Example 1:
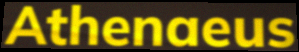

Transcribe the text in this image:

Athenaeus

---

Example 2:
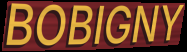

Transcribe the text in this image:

BOBIGNY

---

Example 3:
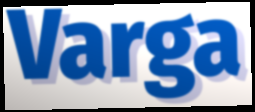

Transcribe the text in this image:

Varga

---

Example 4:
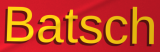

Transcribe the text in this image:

Batsch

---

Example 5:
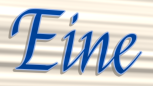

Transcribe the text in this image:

Eine